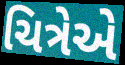
ચિત્રેએ